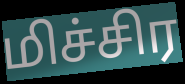
மிச்சிர